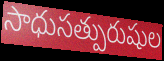
సాధుసత్పురుషుల